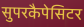
सुपरकैपेसिटर